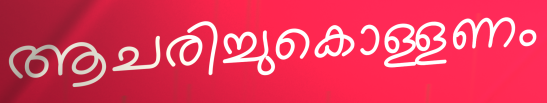
ആചരിച്ചുകൊള്ളണം